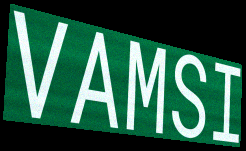
VAMSI